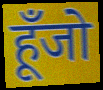
हूँजो